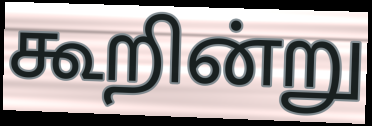
கூறின்று